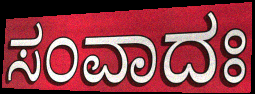
ಸಂವಾದಃ